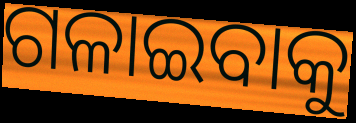
ଗଳାଇବାକୁ